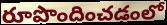
రూపొందించడంలో